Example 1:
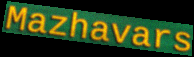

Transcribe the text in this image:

Mazhavars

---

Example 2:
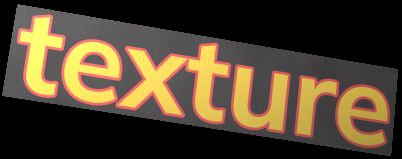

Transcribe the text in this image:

texture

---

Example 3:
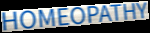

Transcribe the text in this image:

HOMEOPATHY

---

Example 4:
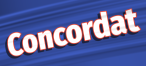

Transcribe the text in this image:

Concordat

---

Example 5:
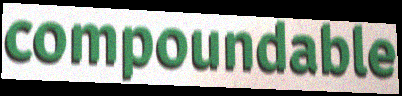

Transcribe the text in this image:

compoundable